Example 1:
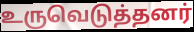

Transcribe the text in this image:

உருவெடுத்தனர்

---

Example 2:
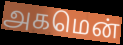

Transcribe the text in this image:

அகமென்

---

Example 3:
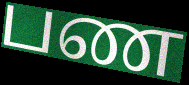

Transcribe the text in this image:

பண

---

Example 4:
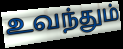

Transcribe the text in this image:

உவந்தும்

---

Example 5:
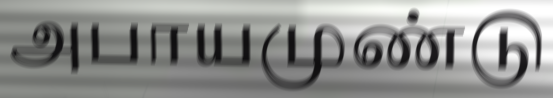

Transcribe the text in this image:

அபாயமுண்டு